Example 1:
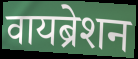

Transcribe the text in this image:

वायब्रेशन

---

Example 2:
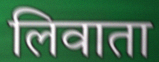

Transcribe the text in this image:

लिवाता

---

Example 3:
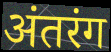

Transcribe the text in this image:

अंतरंग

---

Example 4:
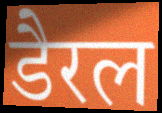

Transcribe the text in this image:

डैरल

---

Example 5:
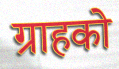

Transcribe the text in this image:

ग्राहको